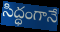
సిద్ధంగానే